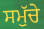
ਸਮੁੱਚੇ